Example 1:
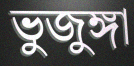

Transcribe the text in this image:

ভুজুঙ্গা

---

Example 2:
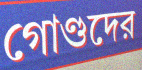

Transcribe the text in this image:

গোণ্ডদের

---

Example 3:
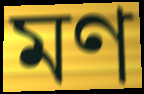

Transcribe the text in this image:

মণ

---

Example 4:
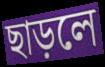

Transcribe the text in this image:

ছাড়লে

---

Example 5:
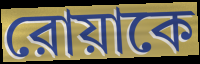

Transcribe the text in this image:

রোয়াকে